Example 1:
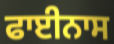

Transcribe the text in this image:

ਫਾਈਨਾਸ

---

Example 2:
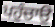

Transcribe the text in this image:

ਪਹੁੰਚਾਉ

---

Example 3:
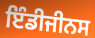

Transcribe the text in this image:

ਇੰਡੀਜੀਨਸ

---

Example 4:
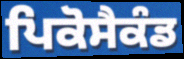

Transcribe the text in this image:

ਪਿਕੋਸੈਕੰਡ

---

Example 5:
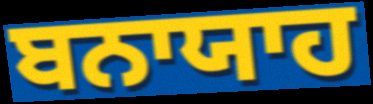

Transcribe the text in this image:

ਬਨਾਯਾਹ